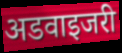
अडवाइजरी